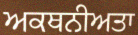
ਅਕਥਨੀਅਤਾ